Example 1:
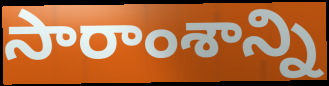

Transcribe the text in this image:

సారాంశాన్ని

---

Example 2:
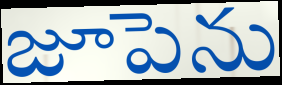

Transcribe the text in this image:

జూపెను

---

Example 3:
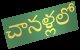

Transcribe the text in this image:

చానళ్లలో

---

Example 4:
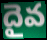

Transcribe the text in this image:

దైవ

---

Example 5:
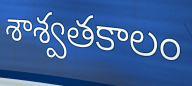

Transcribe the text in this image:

శాశ్వతకాలం